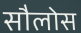
सौलोस